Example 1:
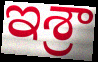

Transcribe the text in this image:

ఇశ్రా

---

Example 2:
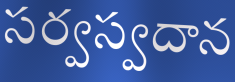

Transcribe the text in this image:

సర్వస్వదాన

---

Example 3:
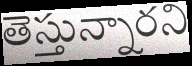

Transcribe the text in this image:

తెస్తున్నారని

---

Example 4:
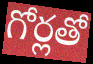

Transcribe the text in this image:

గోర్లతో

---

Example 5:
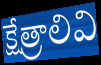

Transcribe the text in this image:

క్షేత్రాలివి